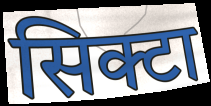
सिक्टा